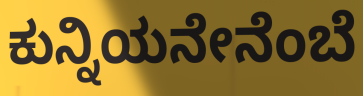
ಕುನ್ನಿಯನೇನೆಂಬೆ